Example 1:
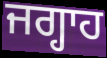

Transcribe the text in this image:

ਜਗ੍ਹਾਹ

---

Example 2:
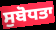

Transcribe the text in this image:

ਸੁਬੋਧਤਾ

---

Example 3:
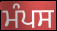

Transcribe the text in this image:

ਮੰਪਸ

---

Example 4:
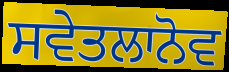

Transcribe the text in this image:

ਸਵੇਤਲਾਨੋਵ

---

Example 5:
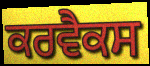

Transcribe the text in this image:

ਕਰਵੈਕਸ